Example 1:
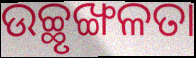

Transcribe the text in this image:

ଉଚ୍ଛୃଙ୍ଖଳତା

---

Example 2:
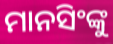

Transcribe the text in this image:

ମାନସିଂଙ୍କୁ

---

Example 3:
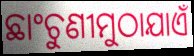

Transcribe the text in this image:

ଛାଂଚୁଣୀମୁଠାଯାଏଁ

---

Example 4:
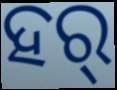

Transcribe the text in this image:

ହର୍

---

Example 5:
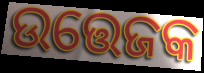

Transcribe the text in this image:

ଉତ୍ତେଜକ